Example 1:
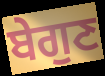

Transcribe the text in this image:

ਬੇਗੁਣ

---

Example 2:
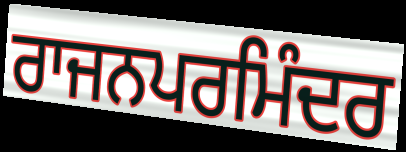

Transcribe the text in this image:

ਰਾਜਨਪਰਮਿੰਦਰ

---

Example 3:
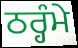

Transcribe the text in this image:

ਠਰ੍ਹੰਮੇ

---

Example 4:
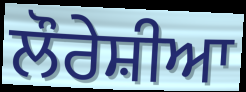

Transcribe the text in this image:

ਲੌਰੇਸ਼ੀਆ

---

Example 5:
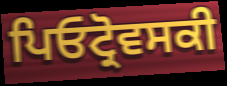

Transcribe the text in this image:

ਪਿਓਟ੍ਰੋਵਸਕੀ